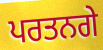
ਪਰਤਨਗੇ